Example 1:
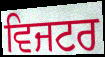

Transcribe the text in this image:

ਵਿਜਟਰ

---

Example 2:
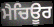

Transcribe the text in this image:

ਮੈਚਿਊਰ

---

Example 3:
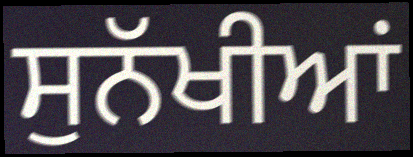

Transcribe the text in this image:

ਸੁਨੱਖੀਆਂ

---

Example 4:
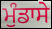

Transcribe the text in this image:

ਮੁੰਡਾਸੇ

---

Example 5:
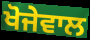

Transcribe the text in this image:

ਖੋਜੇਵਾਲ